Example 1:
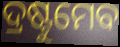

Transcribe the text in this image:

ଦ୍ରଷ୍ଟୁମେବ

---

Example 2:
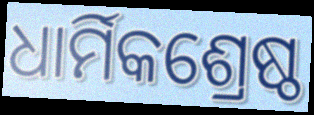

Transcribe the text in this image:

ଧାର୍ମିକଶ୍ରେଷ୍ଠ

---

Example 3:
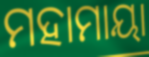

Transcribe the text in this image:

ମହାମାୟା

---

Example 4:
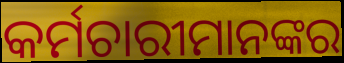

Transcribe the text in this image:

କର୍ମଚାରୀମାନଙ୍କର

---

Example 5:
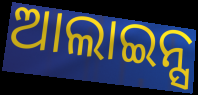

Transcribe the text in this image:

ଆଲାଇନ୍ସ